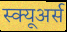
स्क्यूअर्स